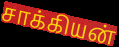
சாக்கியன்